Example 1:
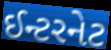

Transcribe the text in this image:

ઈન્ટરનેટ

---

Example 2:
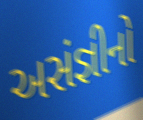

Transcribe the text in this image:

અસંજ્ઞીનો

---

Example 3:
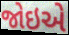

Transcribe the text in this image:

જોઇએ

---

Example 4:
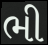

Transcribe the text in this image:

ભી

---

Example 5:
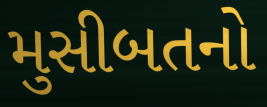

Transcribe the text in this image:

મુસીબતનો